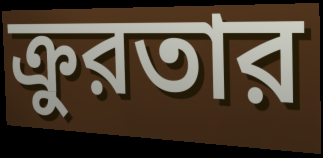
ক্রুরতার